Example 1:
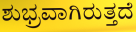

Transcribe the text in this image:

ಶುಭ್ರವಾಗಿರುತ್ತದೆ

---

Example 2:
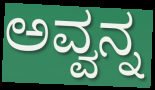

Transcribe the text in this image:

ಅವ್ವನ್ನ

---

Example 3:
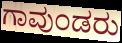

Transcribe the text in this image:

ಗಾವುಂಡರು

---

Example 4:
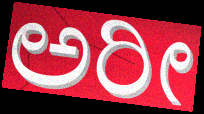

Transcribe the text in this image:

ಅರೀ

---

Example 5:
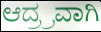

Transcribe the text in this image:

ಆದ್ರ್ರವಾಗಿ